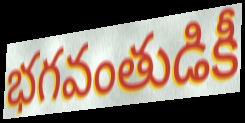
భగవంతుడికీ